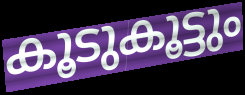
കൂടുകൂട്ടും